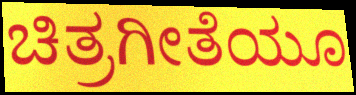
ಚಿತ್ರಗೀತೆಯೂ